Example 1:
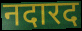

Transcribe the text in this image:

नदारद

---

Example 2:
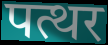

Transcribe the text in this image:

पत्थर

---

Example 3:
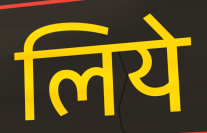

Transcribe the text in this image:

लिये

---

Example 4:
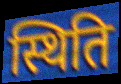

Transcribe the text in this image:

स्थिति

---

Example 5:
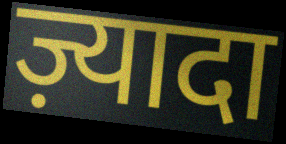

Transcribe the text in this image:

ज़्यादा